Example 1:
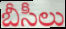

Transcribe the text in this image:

బీసీలు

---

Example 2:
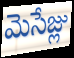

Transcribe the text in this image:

మెసేజ్లు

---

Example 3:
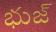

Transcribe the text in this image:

భుజ్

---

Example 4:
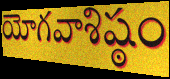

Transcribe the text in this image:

యోగవాశిష్ఠం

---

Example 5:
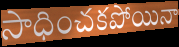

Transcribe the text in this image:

సాధించకపోయినా